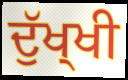
ਦੁੱਖ੍ਖੀ